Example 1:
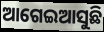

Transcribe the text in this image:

ଆଗେଇଆସୁଛି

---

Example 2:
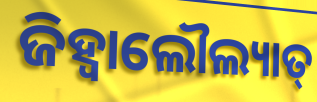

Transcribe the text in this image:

ଜିହ୍ଵାଲୌଲ୍ୟାତ୍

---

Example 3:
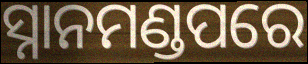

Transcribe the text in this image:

ସ୍ନାନମଣ୍ଡପରେ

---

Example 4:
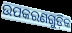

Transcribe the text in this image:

ଉପକରଣଗୁଡ଼ିକ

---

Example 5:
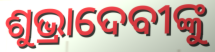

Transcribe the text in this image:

ଶୁଭ୍ରାଦେବୀଙ୍କୁ